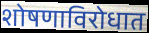
शोषणाविरोधात